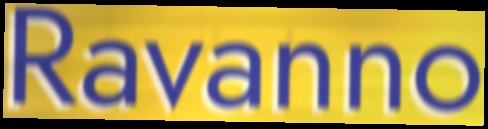
Ravanno